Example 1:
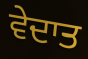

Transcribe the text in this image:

ਵੇਦਾਤ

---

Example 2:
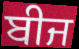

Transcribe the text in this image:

ਬੀਜ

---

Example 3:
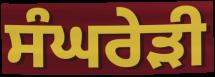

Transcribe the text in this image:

ਸੰਘਰੇੜੀ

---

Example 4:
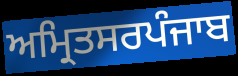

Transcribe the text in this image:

ਅਮ੍ਰਿਤਸਰਪੰਜਾਬ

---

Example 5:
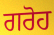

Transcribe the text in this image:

ਗਰੋਹ